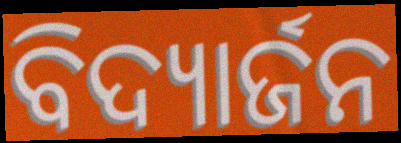
ବିଦ୍ୟାର୍ଜନ